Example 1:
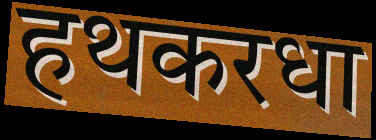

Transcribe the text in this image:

हथकरधा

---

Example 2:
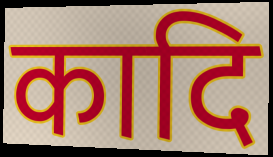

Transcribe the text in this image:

कादि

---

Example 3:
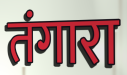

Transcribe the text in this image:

तंगारा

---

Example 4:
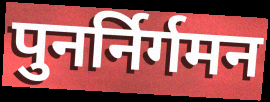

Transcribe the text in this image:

पुनर्निर्गमन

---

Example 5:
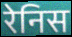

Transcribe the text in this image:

रेनिस